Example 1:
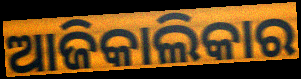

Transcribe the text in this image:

ଆଜିକାଲିକାର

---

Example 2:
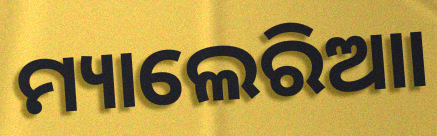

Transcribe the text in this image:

ମ୍ୟାଲେରିଆା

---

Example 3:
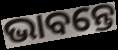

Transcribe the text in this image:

ଭାବନ୍ତେ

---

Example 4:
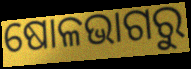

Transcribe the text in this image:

ଷୋଳଭାଗରୁ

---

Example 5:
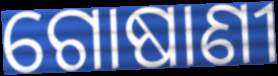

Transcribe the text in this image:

ଗୋଷାଣୀ